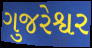
ગુજરેશ્વર